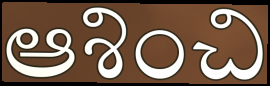
ఆశించి